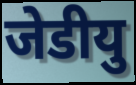
जेडीयु